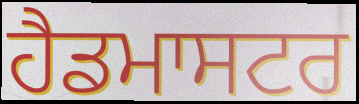
ਹੈਡਮਾਸਟਰ